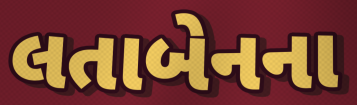
લતાબેનના